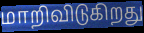
மாறிவிடுகிறது